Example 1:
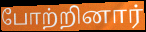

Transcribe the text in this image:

போற்றினார்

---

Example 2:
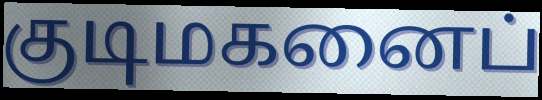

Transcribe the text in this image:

குடிமகனைப்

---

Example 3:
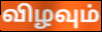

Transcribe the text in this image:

விழவும்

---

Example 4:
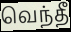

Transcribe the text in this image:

வெந்தீ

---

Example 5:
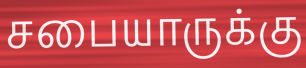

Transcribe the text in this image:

சபையாருக்கு